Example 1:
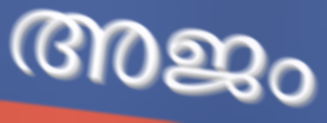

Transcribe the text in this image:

അജം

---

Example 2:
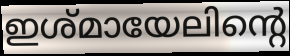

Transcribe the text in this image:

ഇശ്മായേലിന്റെ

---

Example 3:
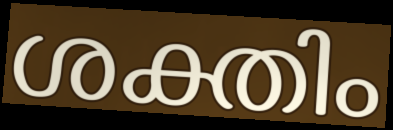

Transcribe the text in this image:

ശക്തിം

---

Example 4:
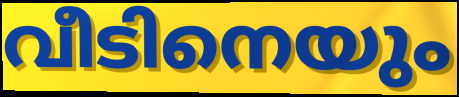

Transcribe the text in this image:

വീടിനെയും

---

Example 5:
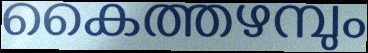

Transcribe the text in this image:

കൈത്തഴമ്പും